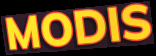
MODIS